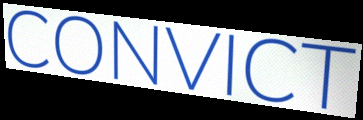
CONVICT